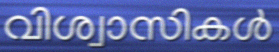
വിശ്വാസികൾ